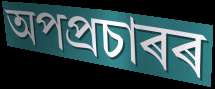
অপপ্ৰচাৰৰ